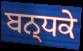
ਬਨ੍ਧਕੇ